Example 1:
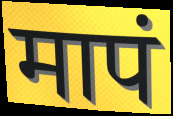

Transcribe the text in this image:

मापं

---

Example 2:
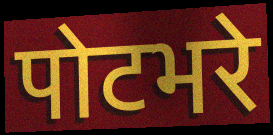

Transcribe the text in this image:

पोटभरे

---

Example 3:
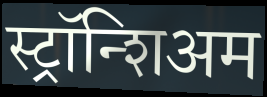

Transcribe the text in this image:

स्ट्रॉन्शिअम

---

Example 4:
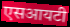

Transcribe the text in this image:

एसआयटी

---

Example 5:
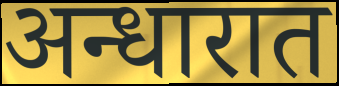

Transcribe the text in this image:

अन्धारात